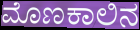
ಮೊಣಕಾಲಿನ